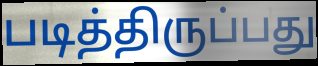
படித்திருப்பது